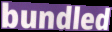
bundled